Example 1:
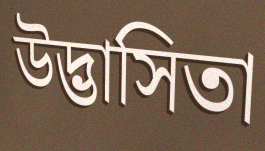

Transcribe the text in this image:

উদ্ভাসিতা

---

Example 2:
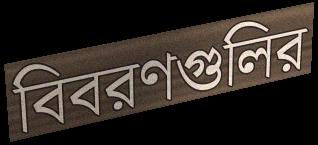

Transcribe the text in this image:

বিবরণগুলির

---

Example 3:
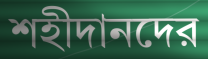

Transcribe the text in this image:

শহীদানদের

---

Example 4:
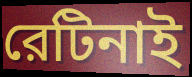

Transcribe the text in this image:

রেটিনাই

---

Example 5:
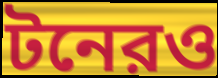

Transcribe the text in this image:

টনেরও